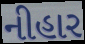
નીહાર